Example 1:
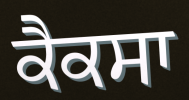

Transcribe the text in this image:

ਕੈਕਸਾ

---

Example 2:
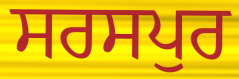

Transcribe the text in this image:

ਸਰਸਪੁਰ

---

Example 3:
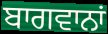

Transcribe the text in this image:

ਬਾਗਵਾਨਾਂ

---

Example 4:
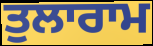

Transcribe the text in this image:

ਤੁਲਾਰਾਮ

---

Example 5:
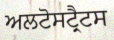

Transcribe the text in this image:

ਅਲਟੋਸਟ੍ਰੈਟਸ